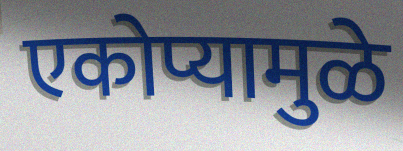
एकोप्यामुळे